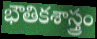
భౌతికశాస్త్రం